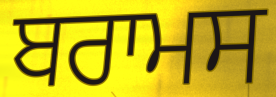
ਬਰਾਮਸ